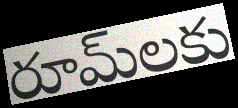
రూమ్‌లకు